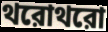
থরোথরো